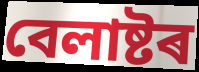
বেলাষ্টৰ